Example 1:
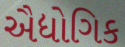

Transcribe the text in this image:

ઐદ્યોગિક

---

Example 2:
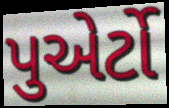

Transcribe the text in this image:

પુએર્ટો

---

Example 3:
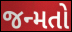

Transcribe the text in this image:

જન્મતો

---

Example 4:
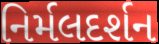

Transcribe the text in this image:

નિર્મલદર્શન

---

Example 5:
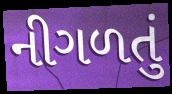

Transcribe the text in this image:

નીગળતું